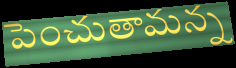
పెంచుతామన్న